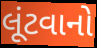
લૂંટવાનો